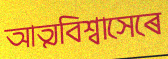
আত্মবিশ্বাসেৰে